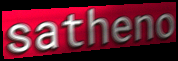
satheno